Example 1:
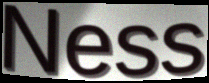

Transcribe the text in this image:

Ness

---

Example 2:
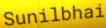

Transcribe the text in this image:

Sunilbhai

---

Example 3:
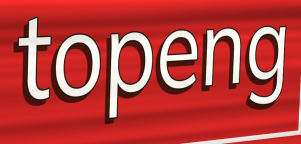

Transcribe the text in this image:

topeng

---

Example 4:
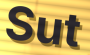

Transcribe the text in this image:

Sut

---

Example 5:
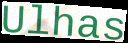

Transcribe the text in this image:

Ulhas